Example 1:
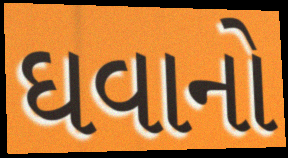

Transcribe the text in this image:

ઘવાનો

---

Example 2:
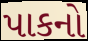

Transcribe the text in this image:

પાકનો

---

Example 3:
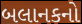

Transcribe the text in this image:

બલાનકનો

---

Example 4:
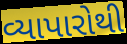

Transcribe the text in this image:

વ્યાપારોથી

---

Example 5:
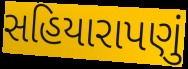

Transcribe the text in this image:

સહિયારાપણું